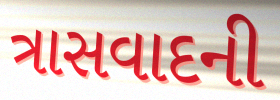
ત્રાસવાદની